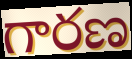
గారణ